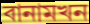
বানামখন